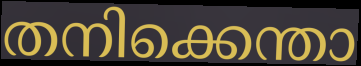
തനിക്കെന്താ